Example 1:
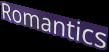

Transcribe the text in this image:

Romantics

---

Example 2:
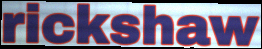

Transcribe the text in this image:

rickshaw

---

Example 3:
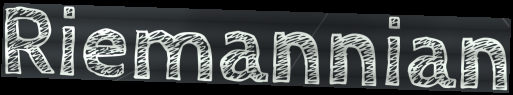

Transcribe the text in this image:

Riemannian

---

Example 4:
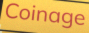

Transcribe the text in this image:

Coinage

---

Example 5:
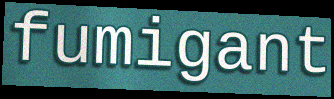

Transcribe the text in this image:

fumigant